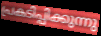
പ്രകടിപ്പിക്കുന്നു